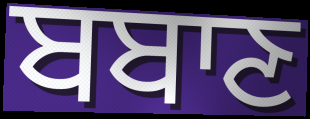
ਬਬਾਣ